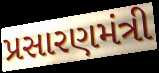
પ્રસારણમંત્રી